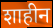
शाहीन